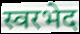
स्वरभेद